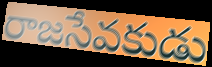
రాజసేవకుడు